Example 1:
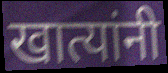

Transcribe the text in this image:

खात्यांनी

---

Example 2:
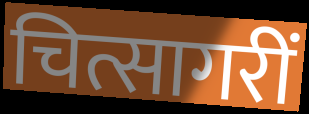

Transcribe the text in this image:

चित्सागरीं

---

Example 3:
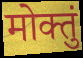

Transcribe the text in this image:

मोक्तुं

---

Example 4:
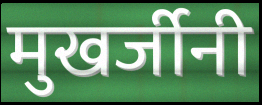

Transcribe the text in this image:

मुखर्जीनी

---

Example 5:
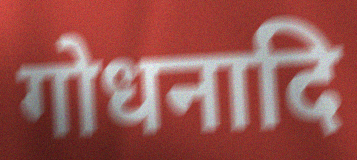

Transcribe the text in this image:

गोधनादि